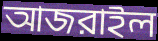
আজরাইল